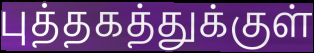
புத்தகத்துக்குள்